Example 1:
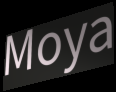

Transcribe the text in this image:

Moya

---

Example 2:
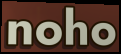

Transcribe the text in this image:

noho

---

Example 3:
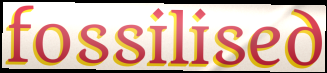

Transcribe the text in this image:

fossilised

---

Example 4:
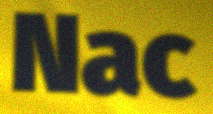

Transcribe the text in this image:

Nac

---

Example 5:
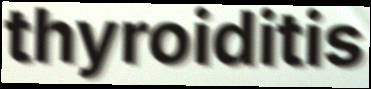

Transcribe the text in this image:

thyroiditis